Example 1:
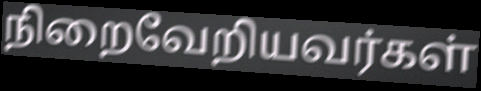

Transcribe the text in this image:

நிறைவேறியவர்கள்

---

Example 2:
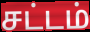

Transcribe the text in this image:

சட்டம்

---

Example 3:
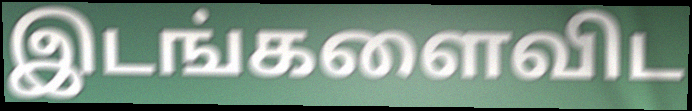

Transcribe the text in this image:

இடங்களைவிட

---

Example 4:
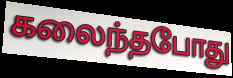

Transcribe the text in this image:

கலைந்தபோது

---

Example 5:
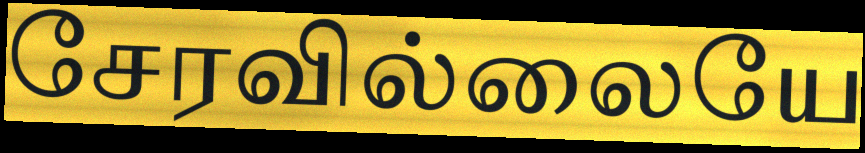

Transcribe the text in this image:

சேரவில்லையே